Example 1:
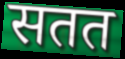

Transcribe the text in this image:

सतत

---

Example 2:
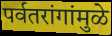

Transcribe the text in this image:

पर्वतरांगांमुळे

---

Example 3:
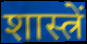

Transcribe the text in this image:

शास्त्रें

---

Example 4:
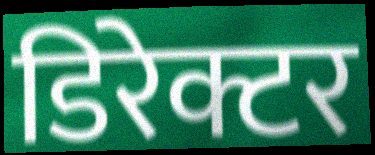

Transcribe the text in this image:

डिरेक्टर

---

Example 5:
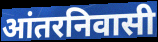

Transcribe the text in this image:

आंतरनिवासी